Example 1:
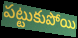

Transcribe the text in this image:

పట్టుకుపోయి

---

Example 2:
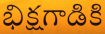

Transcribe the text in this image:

భిక్షగాడికి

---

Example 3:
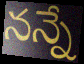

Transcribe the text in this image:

నన్నే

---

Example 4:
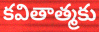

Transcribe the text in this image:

కవితాత్మకు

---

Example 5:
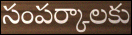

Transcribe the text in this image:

సంపర్కాలకు